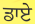
ਡਾਏ